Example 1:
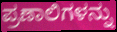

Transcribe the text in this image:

ಪ್ರಣಾಲಿಗಳನ್ನು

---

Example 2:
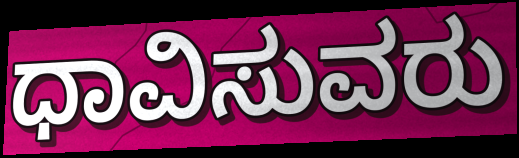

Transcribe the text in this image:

ಧಾವಿಸುವರು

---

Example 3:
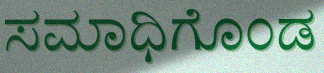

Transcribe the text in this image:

ಸಮಾಧಿಗೊಂಡ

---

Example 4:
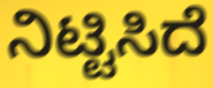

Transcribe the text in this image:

ನಿಟ್ಟಿಸಿದೆ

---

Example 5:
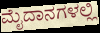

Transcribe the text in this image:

ಮೈದಾನಗಳಲ್ಲಿ